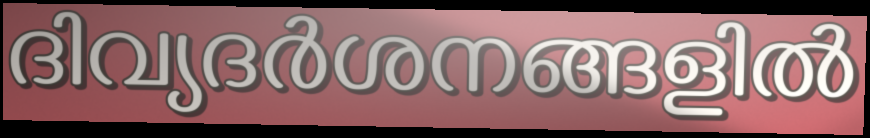
ദിവ്യദർശനങ്ങളിൽ